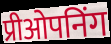
प्रीओपनिंग